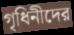
গৃধিনীদের